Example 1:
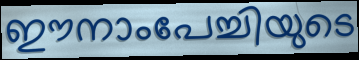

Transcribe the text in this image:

ഈനാംപേച്ചിയുടെ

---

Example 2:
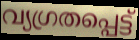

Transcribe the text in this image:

വ്യഗ്രതപ്പെട്ട്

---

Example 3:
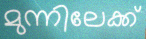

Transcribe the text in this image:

മുന്നിലേക്ക്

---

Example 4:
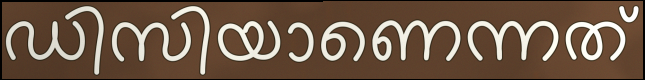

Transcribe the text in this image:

ഡിസിയാണെന്നത്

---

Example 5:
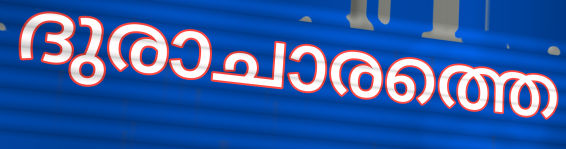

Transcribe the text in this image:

ദുരാചാരത്തെ